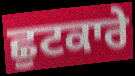
ਛੁਟਕਾਰੇ